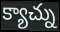
క్యాచ్ను